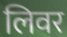
लिवर